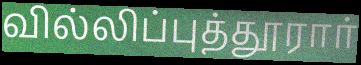
வில்லிப்புத்தூரார்